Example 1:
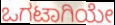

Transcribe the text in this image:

ಒಗಟಾಗಿಯೇ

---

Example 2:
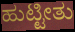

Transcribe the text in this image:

ಹುಟ್ಟೀತು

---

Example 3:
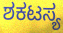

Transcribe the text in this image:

ಶಕಟಸ್ಯ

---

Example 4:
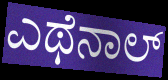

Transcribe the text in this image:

ಎಥೆನಾಲ್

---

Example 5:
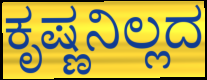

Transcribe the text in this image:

ಕೃಷ್ಣನಿಲ್ಲದ